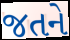
જતને